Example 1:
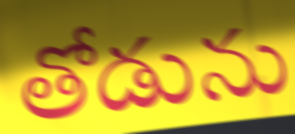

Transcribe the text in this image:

తోడును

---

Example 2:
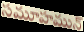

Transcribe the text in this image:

సమూహమున్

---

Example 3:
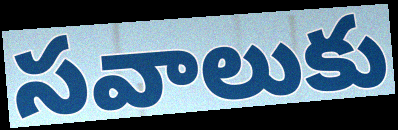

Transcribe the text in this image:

సవాలుకు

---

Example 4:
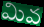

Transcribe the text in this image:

మివ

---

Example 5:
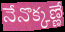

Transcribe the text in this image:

నేనొక్కణ్ణే